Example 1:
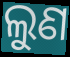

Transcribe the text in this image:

ଲୁଣ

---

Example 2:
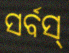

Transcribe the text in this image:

ସର୍ବସ୍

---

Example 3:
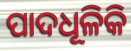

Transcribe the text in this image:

ପାଦଧୂଳିକି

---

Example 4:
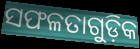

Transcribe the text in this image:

ସଫଳତାଗୁଡ଼ିକ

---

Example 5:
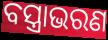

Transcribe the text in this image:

ବସ୍ତ୍ରାଭରଣ